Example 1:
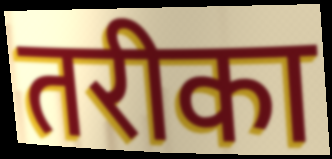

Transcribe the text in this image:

तरीका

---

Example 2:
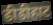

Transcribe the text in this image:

डीडीहाट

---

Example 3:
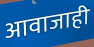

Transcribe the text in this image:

आवाजाही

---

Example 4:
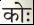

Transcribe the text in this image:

कोः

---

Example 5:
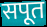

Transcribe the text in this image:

सपूत